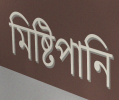
মিষ্টিপানি